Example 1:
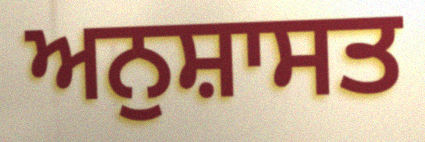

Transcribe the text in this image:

ਅਨੁਸ਼ਾਸਤ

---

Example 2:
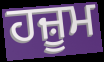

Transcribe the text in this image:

ਹਜ਼ੂਮ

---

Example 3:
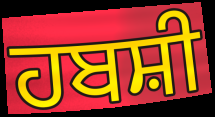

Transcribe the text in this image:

ਹਬਸ਼ੀ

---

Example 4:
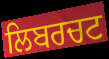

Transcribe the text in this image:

ਲਿਬਰਚਟ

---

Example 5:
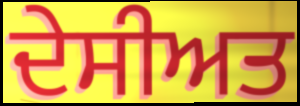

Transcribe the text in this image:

ਦੇਸੀਅਤ